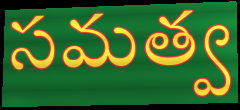
సమత్వ